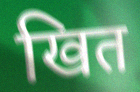
खित